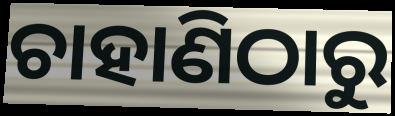
ଚାହାଣିଠାରୁ